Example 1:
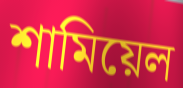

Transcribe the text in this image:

শামিয়েল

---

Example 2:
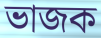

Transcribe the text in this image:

ভাজক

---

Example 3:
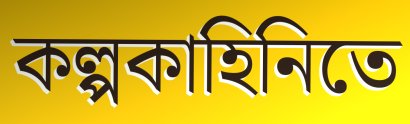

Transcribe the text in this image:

কল্পকাহিনিতে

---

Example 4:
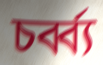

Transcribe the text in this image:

চর্ব্ব্য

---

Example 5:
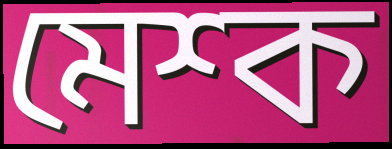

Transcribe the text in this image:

মেশ্ক